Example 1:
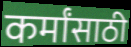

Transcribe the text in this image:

कर्मांसाठी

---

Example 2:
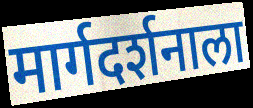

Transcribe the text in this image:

मार्गदर्शनाला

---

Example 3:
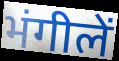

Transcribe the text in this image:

भंगीलें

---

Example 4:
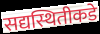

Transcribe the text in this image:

सद्यस्थितीकडे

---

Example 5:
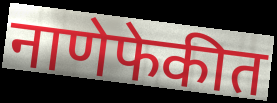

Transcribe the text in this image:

नाणेफेकीत